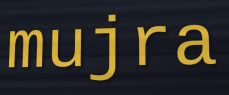
mujra